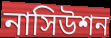
নাসিউশন